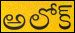
అలోక్